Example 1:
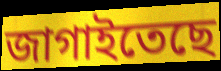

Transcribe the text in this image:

জাগাইতেছে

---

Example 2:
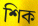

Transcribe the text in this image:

শিক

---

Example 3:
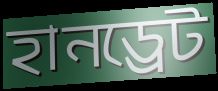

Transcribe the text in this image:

হানড্রেট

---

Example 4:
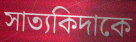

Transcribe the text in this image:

সাত্যকিদাকে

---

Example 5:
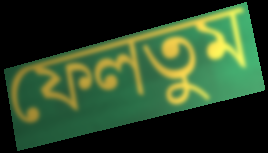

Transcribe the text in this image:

ফেলতুম